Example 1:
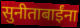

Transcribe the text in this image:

सुनीताबाईंना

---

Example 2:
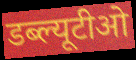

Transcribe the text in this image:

डब्ल्यूटीओ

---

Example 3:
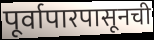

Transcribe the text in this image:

पूर्वापारपासूनची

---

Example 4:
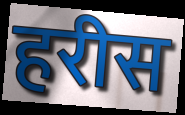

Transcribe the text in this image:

हरीस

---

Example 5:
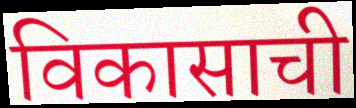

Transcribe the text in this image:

विकासाची